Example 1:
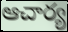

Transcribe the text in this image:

ఆచార్య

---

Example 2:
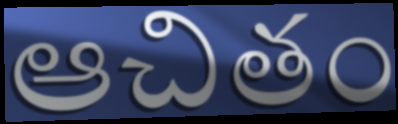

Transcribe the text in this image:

ఆచితం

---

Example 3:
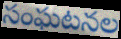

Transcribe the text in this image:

సంఘటనల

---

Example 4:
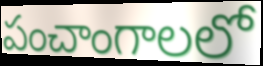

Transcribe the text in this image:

పంచాంగాలలో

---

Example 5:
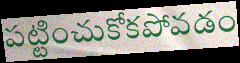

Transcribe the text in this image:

పట్టించుకోకపోవడం